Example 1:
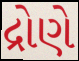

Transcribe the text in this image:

દ્રોણે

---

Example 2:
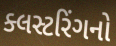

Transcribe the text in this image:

ક્લસ્ટરિંગનો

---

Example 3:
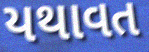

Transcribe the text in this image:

યથાવત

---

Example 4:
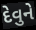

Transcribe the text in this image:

દેવુને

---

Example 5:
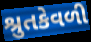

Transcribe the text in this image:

શ્રુતકેવળી